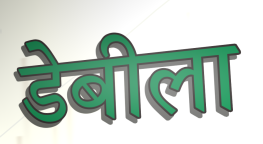
डेबीला